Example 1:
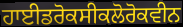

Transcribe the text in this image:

ਹਾਈਡਰੋਕਸੀਕਲੋਰੋਕਵੀਨ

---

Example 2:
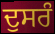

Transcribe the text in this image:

ਦੁਸਰੰ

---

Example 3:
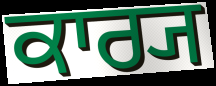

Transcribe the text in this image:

ਕਾਰ੍ਯ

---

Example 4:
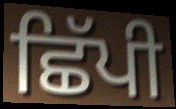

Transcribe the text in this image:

ਛਿੱਪੀ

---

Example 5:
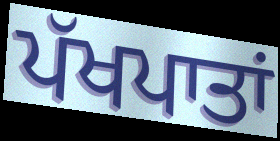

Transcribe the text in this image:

ਪੱਖਪਾਤਾਂ